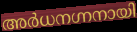
അർധനഗ്നനായി